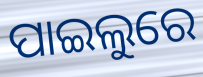
ପାଇଲୁରେ